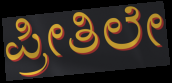
ಪ್ರೀತಿಲೇ